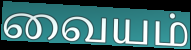
வையம்